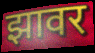
झावर